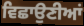
ਵਿਛਾਉਣੀਆਂ